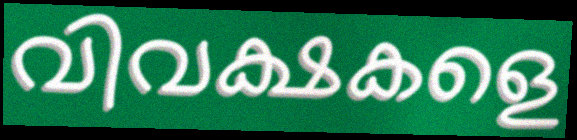
വിവക്ഷകളെ